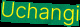
Uchangi